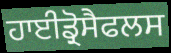
ਹਾਈਡ੍ਰੋਸੈਫਲਸ